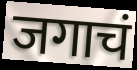
जगाचं